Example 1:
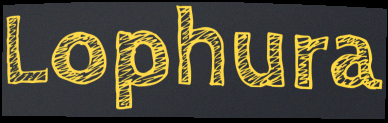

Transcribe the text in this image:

Lophura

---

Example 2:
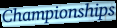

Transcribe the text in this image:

Championships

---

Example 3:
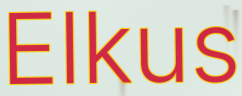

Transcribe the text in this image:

Elkus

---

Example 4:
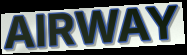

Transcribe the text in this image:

AIRWAY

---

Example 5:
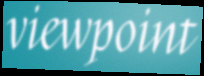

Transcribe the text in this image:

viewpoint